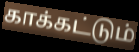
காக்கட்டும்